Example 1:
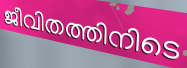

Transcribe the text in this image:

ജീവിതത്തിനിടെ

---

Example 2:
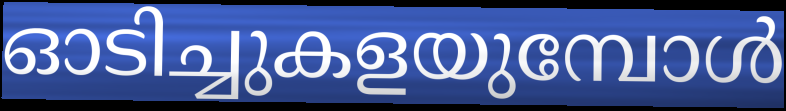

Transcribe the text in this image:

ഓടിച്ചുകളയുമ്പോൾ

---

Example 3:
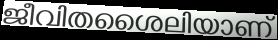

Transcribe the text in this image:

ജീവിതശൈലിയാണ്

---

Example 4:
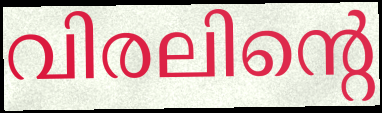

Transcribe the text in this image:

വിരലിന്റെ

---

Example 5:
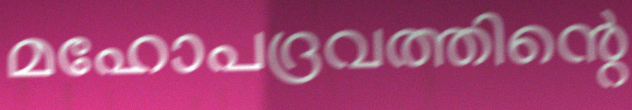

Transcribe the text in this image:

മഹോപദ്രവത്തിന്റെ